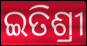
ଇତିଶ୍ରୀ